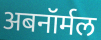
अबनॉर्मल